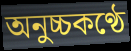
অনুচ্চকণ্ঠে